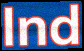
Ind